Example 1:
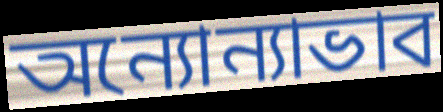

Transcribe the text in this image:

অন্যোন্যাভাব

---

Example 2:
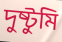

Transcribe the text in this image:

দুষ্টুমি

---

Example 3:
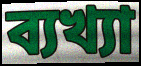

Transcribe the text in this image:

ব্যখ্যা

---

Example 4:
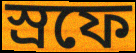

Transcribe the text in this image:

স্রফে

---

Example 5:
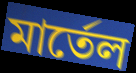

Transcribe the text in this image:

মার্তেল